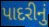
પાદરીનું